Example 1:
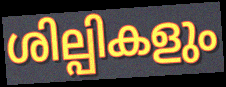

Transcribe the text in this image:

ശില്പികളും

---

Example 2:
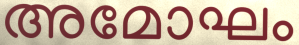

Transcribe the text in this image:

അമോഘം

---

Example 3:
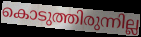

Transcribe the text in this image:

കൊടുത്തിരുന്നില്ല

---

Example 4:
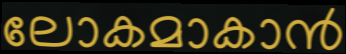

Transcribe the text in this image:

ലോകമാകാൻ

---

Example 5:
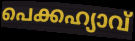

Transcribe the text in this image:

പെക്കഹ്യാവ്